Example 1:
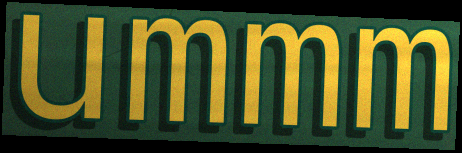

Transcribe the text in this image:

ummm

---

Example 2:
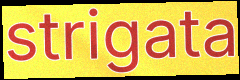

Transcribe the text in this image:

strigata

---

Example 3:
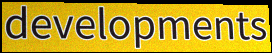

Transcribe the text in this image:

developments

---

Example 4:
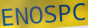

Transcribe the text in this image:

ENOSPC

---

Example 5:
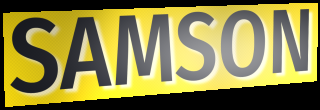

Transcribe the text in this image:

SAMSON